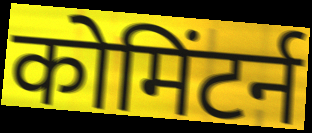
कोमिंटर्न